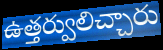
ఉత్తర్వులిచ్చారు